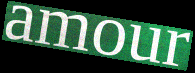
amour